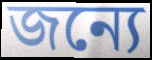
জন্যে